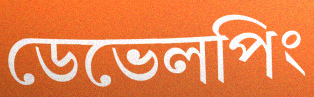
ডেভেলপিং